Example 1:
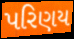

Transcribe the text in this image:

પરિણય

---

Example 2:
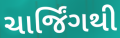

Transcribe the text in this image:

ચાર્જિંગથી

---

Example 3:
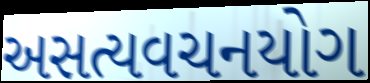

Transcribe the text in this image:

અસત્યવચનયોગ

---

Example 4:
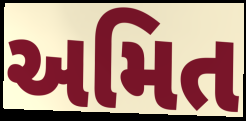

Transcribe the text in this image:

અમિત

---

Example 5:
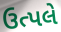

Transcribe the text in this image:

ઉત્પલે